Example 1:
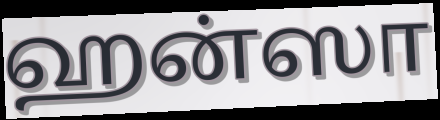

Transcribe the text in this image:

ஹன்ஸா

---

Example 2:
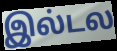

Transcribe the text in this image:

இல்டல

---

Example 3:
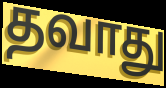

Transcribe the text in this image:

தவாது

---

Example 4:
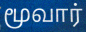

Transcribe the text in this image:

மூவார்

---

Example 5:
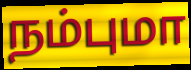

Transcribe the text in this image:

நம்புமா